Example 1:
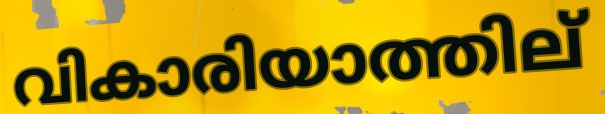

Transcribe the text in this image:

വികാരിയാത്തില്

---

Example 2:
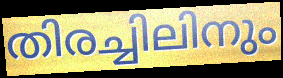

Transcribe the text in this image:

തിരച്ചിലിനും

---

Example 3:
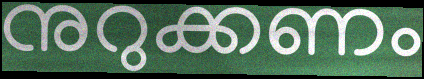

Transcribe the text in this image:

നുറുക്കണം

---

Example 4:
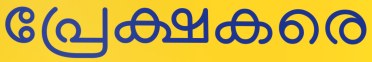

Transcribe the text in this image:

പ്രേക്ഷകരെ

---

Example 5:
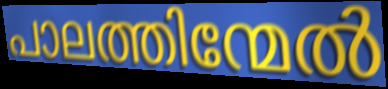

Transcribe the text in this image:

പാലത്തിന്മേൽ